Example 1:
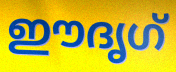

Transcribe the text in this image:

ഈദൃഗ്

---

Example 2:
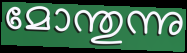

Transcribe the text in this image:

മോന്തുന്നു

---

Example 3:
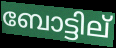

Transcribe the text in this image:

ബോട്ടില്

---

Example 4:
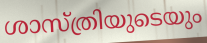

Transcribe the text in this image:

ശാസ്ത്രിയുടെയും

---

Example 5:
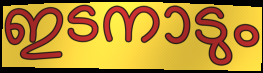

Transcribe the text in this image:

ഇടനാടും